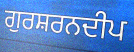
ਗੁਰਸ਼ਰਨਦੀਪ